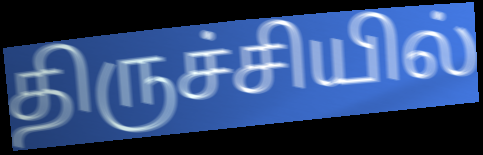
திருச்சியில்